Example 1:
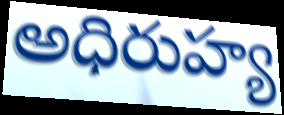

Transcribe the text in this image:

అధిరుహ్య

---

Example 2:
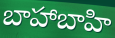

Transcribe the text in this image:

బాహాబాహి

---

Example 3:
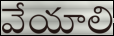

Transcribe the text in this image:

వేయాలి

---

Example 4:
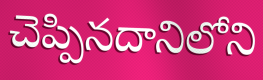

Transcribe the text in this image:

చెప్పినదానిలోని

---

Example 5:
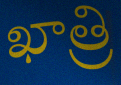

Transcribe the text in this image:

ఖాత్రి